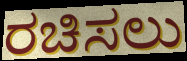
ರಚಿಸಲು